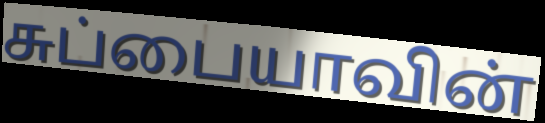
சுப்பையாவின்